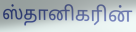
ஸ்தானிகரின்